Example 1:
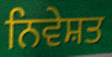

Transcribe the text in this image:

ਨਿਵੇਸ਼ਤ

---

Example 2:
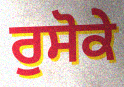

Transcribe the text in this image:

ਰੁਸੋਕੇ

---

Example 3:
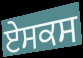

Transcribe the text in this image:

ਏਸਕਸ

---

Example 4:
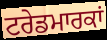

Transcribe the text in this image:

ਟਰੇਡਮਾਰਕਾਂ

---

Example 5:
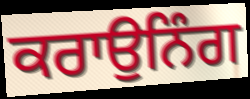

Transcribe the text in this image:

ਕਰਾਉਨਿੰਗ